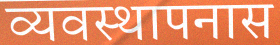
व्यवस्थापनास